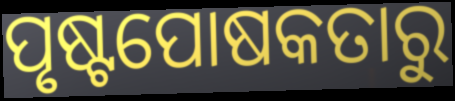
ପୃଷ୍ଟପୋଷକତାରୁ